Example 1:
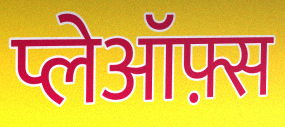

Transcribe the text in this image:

प्लेऑफ़्स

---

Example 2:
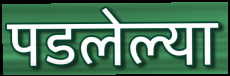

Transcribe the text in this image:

पडलेल्या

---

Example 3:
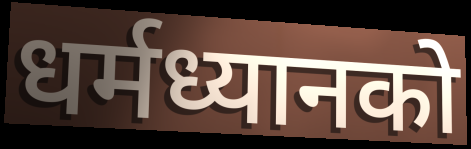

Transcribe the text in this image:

धर्मध्यानको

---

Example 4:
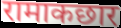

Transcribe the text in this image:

रामाकछार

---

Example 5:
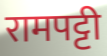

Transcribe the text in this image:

रामपट्टी